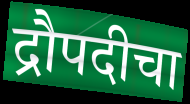
द्रौपदीचा